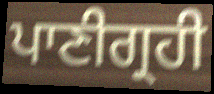
ਪਾਣੀਗ੍ਰਹੀ